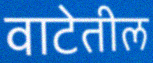
वाटेतील